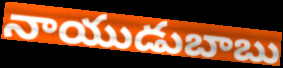
నాయుడుబాబు